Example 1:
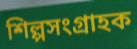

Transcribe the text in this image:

শিল্পসংগ্রাহক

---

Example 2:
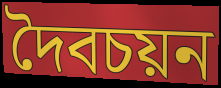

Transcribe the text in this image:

দৈবচয়ন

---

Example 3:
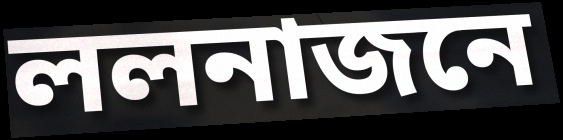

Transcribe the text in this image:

ললনাজনে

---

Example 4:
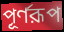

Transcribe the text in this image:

পূর্ণরূপ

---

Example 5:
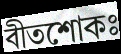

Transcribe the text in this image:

বীতশোকঃ